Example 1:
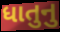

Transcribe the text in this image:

ધાતુનુ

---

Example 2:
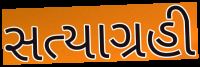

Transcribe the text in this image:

સત્યાગ્રહી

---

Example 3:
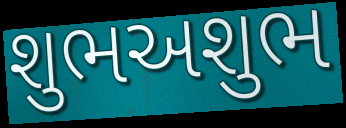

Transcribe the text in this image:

શુભઅશુભ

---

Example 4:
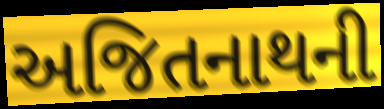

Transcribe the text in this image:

અજિતનાથની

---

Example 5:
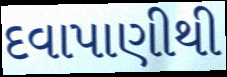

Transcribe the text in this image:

દવાપાણીથી